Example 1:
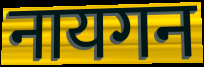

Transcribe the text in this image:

नायगन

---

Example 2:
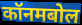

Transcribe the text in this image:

कॉनमबोल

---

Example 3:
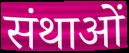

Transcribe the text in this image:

संथाओं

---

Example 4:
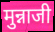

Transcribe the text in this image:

मुन्नाजी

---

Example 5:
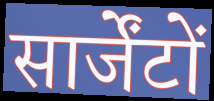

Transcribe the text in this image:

सार्जेंटों